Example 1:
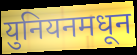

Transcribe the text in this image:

युनियनमधून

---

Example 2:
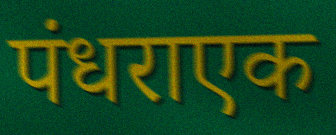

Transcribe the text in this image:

पंधराएक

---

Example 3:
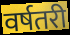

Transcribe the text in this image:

वर्षतरी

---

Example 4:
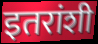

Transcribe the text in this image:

इतरांशी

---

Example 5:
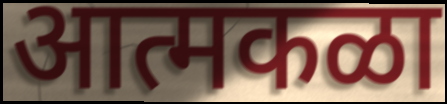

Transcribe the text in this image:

आत्मकळा